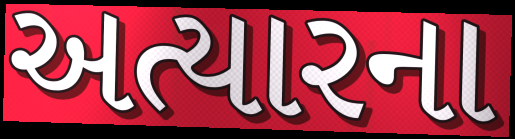
અત્યારના